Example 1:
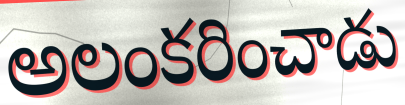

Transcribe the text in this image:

అలంకరించాడు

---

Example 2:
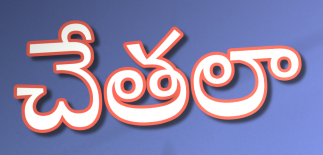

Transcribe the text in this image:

చేతలా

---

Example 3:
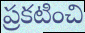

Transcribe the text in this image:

ప్రకటించి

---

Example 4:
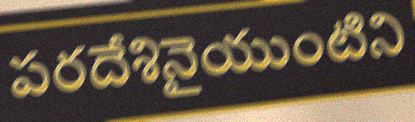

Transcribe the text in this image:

పరదేశినైయుంటిని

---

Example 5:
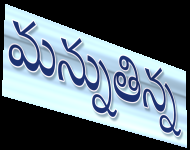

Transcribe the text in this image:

మన్నుతిన్న